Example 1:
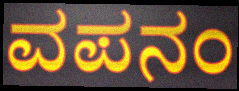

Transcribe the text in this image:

ವಪನಂ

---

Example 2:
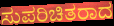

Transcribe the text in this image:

ಸುಪರಿಚಿತರಾದ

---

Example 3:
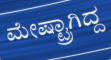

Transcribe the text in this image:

ಮೇಷ್ಟ್ರಾಗಿದ್ದ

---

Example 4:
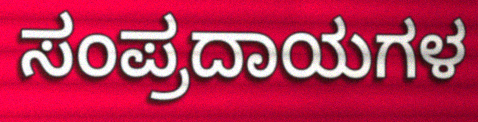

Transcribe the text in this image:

ಸಂಪ್ರದಾಯಗಳ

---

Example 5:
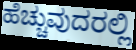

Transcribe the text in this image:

ಹೆಚ್ಚುವುದರಲ್ಲಿ